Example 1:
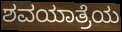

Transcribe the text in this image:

ಶವಯಾತ್ರೆಯ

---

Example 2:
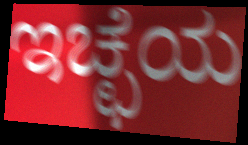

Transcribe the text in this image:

ಇಚ್ಛೆಯ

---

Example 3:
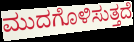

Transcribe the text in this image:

ಮುದಗೊಳಿಸುತ್ತದೆ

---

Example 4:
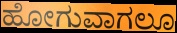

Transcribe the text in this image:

ಹೋಗುವಾಗಲೂ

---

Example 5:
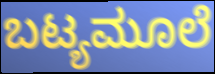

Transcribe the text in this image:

ಬಟ್ಯಮೂಲೆ